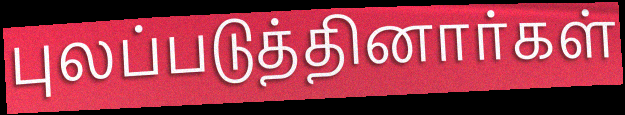
புலப்படுத்தினார்கள்